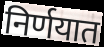
निर्णयात